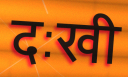
दःखी